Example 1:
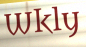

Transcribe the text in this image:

Wkly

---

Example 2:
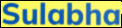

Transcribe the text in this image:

Sulabha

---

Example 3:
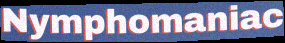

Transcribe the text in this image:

Nymphomaniac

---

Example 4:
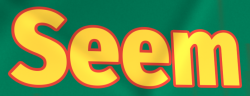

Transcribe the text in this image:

Seem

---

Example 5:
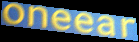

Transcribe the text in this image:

oneear